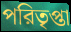
পরিতৃপ্তা